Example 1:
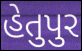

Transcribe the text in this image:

હેતુપુર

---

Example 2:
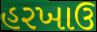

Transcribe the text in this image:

હરખાઉ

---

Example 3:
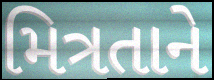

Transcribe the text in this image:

મિત્રતાને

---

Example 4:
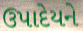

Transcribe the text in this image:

ઉપાદેયને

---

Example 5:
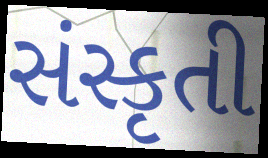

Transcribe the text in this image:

સંસ્કૃતી